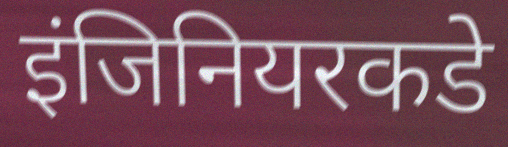
इंजिनियरकडे